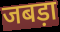
जबड़ा